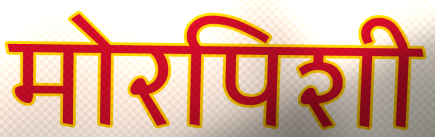
मोरपिशी